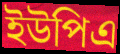
ইউপিএ